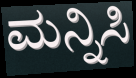
ಮನ್ನಿಸಿ